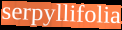
serpyllifolia